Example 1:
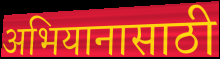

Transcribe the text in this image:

अभियानासाठी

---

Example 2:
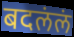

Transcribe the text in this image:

बदलंलं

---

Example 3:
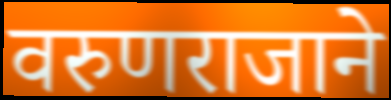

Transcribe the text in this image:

वरुणराजाने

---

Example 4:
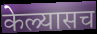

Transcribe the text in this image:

केल्यासच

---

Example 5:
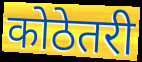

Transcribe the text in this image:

कोठेतरी